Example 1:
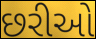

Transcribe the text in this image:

છરીઓ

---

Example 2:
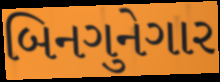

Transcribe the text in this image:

બિનગુનેગાર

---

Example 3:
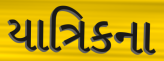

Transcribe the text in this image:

યાત્રિકના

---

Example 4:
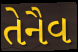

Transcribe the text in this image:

તેનૈવ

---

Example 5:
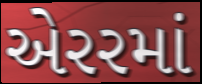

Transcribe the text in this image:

એરરમાં